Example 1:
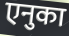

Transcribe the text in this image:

एनुका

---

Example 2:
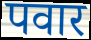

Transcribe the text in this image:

पवार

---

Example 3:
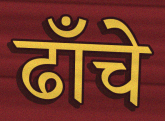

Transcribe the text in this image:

ढाँचे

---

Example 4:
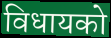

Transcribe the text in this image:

विधायको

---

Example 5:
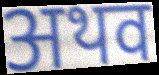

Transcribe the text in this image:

अथव